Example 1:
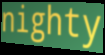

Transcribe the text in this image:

nighty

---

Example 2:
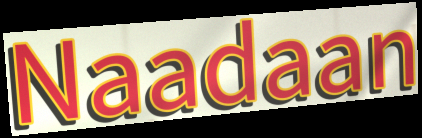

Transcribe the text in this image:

Naadaan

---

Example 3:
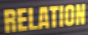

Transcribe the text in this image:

RELATION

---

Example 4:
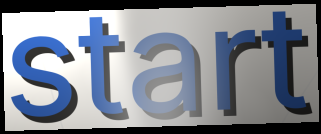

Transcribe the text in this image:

start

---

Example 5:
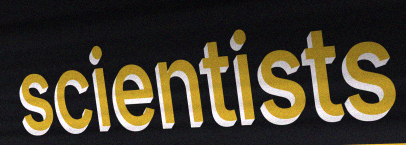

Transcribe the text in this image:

scientists